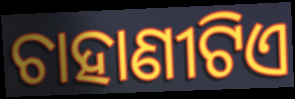
ଚାହାଣୀଟିଏ